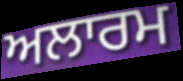
ਅਲਾਰਮ